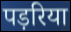
पड़रिया